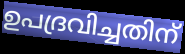
ഉപദ്രവിച്ചതിന്